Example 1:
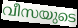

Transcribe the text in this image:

വീസയുടെ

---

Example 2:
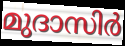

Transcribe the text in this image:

മുദാസിർ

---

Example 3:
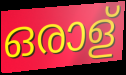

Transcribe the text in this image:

ഒരാള്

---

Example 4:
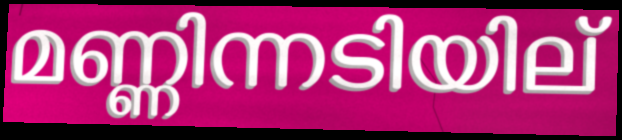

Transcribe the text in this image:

മണ്ണിന്നടിയില്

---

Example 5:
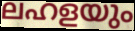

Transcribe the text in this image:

ലഹളയും